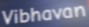
Vibhavan